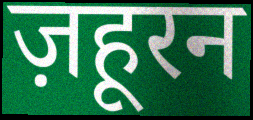
ज़हूरन